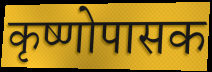
कृष्णोपासक